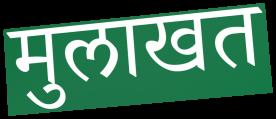
मुलाखत